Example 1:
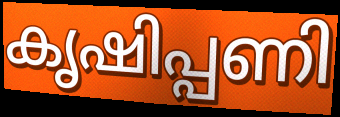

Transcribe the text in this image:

കൃഷിപ്പണി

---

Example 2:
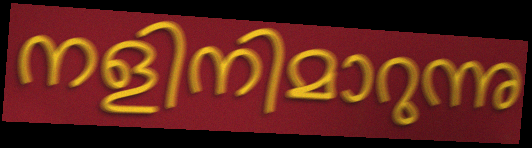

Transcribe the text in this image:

നളിനിമാറുന്നു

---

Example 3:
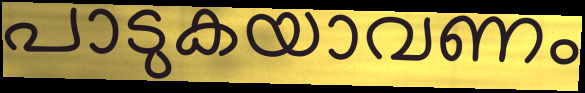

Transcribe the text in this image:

പാടുകയാവണം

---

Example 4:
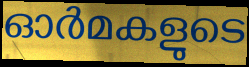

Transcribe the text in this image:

ഓർമകളുടെ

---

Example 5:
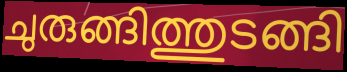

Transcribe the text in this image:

ചുരുങ്ങിത്തുടങ്ങി